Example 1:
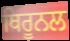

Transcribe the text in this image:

ਥਿਰੂਨਲ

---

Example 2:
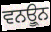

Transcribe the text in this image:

ਵਨਊ੍ਨ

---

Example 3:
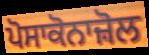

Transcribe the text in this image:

ਪੋਸਾਕੋਨਾਜ਼ੋਲ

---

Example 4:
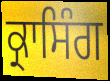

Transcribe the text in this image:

ਕ੍ਰਾਸਿੰਗ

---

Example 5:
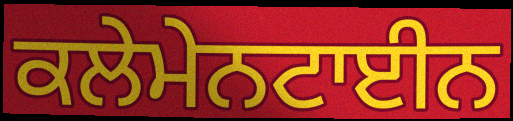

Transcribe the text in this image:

ਕਲੇਮੇਨਟਾਈਨ